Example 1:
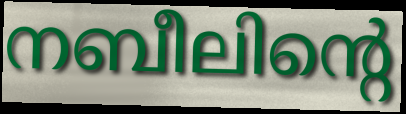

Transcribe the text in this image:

നബീലിന്റെ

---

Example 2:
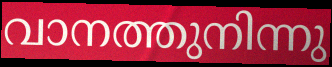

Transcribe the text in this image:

വാനത്തുനിന്നു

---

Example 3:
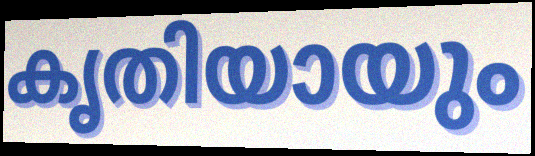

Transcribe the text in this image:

കൃതിയായും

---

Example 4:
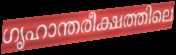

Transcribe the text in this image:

ഗൃഹാന്തരീക്ഷത്തിലെ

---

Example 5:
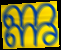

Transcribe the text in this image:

ണ്ണു